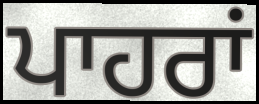
ਪਾਹਰਾਂ